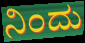
ನಿಂದು